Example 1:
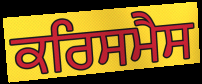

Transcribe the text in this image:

ਕਰਿਸਮੈਸ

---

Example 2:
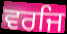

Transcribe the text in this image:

ਵਰਜਿ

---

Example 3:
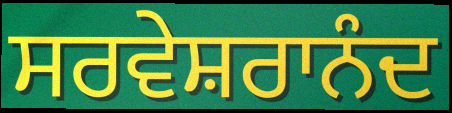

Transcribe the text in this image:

ਸਰਵੇਸ਼ਰਾਨੰਦ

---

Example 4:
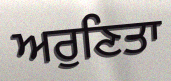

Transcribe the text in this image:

ਅਰੁਣਿਤਾ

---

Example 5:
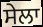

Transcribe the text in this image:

ਸੇਲਾ